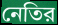
নেতির